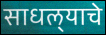
साधल्याचे